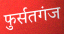
फुर्सतगंज